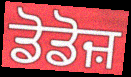
ਡੋਡੋਜ਼